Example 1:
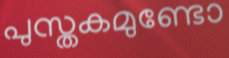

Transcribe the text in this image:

പുസ്തകമുണ്ടോ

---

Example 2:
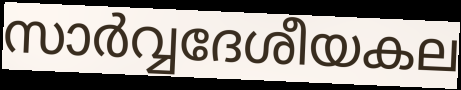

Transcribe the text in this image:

സാർവ്വദേശീയകല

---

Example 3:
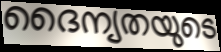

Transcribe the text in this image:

ദൈന്യതയുടെ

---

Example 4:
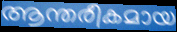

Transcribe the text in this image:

ആന്തരീകമായ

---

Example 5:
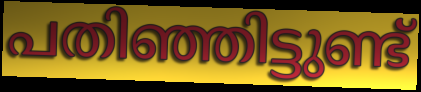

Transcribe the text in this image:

പതിഞ്ഞിട്ടുണ്ട്